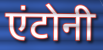
एंटोनी